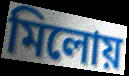
মিলোয়